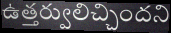
ఉత్తర్వులిచ్చిందని